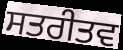
ਸਤਰੀਤਵ